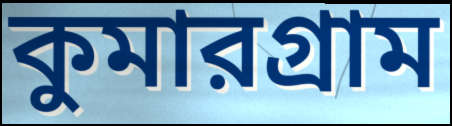
কুমারগ্রাম